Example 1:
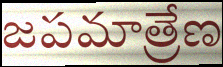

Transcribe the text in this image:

జపమాత్రేణ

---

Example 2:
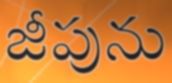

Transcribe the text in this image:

జీపును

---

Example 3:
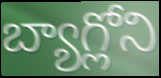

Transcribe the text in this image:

బ్యాగ్లోని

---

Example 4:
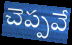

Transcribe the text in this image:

చెప్పవే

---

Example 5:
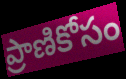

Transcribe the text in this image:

ప్రాణికోసం